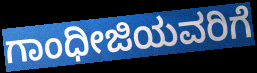
ಗಾಂಧೀಜಿಯವರಿಗೆ